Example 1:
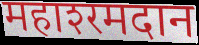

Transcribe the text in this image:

महाश्रमदान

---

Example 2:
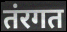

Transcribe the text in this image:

तंरगत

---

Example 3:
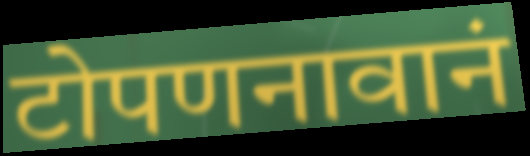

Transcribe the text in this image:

टोपणनावानं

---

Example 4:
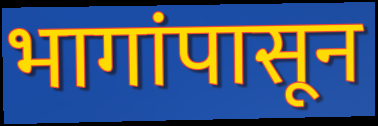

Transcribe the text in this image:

भागांपासून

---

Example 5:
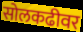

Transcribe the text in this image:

सोलकढीवर